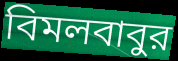
বিমলবাবুর